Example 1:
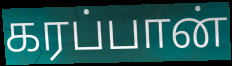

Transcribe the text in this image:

கரப்பான்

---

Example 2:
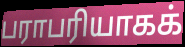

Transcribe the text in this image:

பராபரியாகக்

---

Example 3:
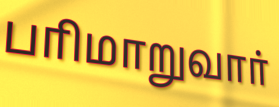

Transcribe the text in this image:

பரிமாறுவார்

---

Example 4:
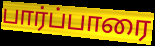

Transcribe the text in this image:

பார்ப்பாரை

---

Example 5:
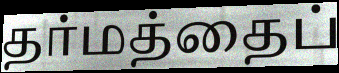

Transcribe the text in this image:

தர்மத்தைப்